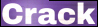
Crack